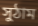
সুঠাম